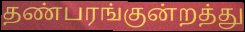
தண்பரங்குன்றத்து